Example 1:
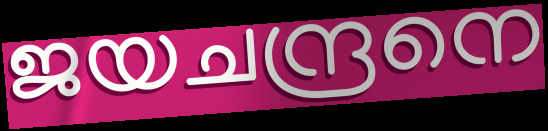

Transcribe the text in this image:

ജയചന്ദ്രനെ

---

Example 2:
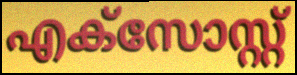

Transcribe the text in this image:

എക്സോസ്റ്റ്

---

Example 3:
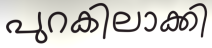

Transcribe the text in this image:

പുറകിലാക്കി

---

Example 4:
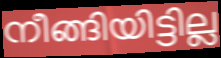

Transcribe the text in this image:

നീങ്ങിയിട്ടില്ല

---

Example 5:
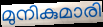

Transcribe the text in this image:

മുനികുമാരി